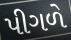
પીગળે